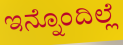
ಇನ್ನೊಂದಿಲ್ಲೆ